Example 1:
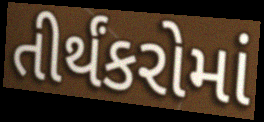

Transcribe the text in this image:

તીર્થંકરોમાં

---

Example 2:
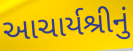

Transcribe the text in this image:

આચાર્યશ્રીનું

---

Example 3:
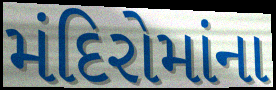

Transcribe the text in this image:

મંદિરોમાંના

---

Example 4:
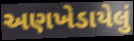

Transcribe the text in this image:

અણખેડાયેલું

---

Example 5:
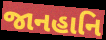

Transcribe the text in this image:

જાનહાનિ